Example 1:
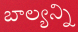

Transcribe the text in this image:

బాల్యన్ని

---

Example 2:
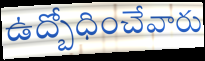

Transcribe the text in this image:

ఉద్బోధించేవారు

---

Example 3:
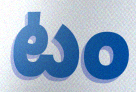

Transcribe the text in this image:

టం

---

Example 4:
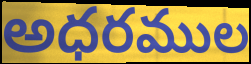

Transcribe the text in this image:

అధరముల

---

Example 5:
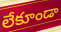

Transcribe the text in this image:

లేకూండా